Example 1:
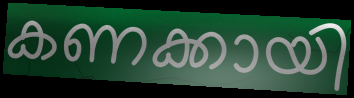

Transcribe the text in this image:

കണക്കായി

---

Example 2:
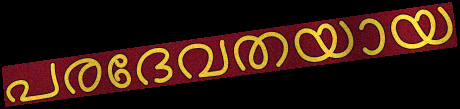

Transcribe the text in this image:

പരദേവതയായ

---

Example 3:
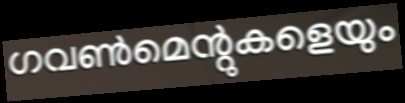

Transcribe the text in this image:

ഗവൺമെന്റുകളെയും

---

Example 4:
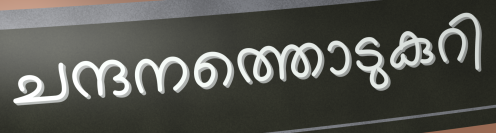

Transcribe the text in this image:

ചന്ദനത്തൊടുകുറി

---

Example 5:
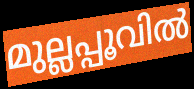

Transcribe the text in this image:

മുല്ലപ്പൂവിൽ